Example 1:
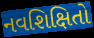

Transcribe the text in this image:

નવશિક્ષિતો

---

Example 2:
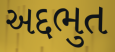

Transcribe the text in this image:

અદ્દભુત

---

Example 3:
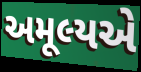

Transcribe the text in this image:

અમૂલ્યએ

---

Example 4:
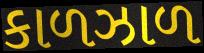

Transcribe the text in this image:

કાળઝાળ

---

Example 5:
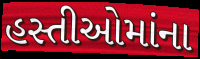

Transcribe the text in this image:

હસ્તીઓમાંના